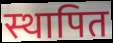
स्थापित